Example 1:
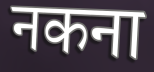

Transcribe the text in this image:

नकना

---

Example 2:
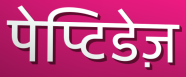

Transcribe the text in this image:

पेप्टिडेज़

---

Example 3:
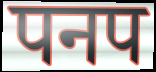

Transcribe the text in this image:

पनप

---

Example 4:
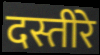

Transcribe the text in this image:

दस्तीरे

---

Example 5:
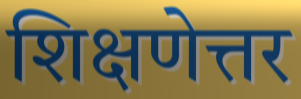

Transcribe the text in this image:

शिक्षणेत्तर